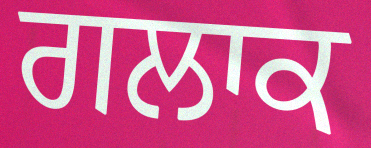
ਗਲਾਕ